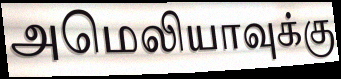
அமெலியாவுக்கு